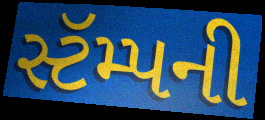
સ્ટૅમ્પની